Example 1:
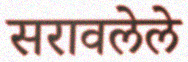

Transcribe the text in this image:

सरावलेले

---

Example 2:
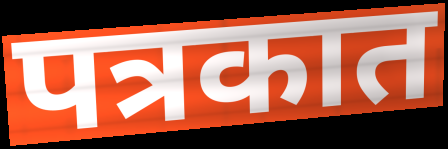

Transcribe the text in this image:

पत्रकात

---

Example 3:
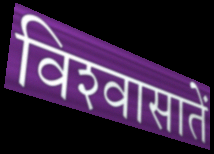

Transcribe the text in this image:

विश्वासातें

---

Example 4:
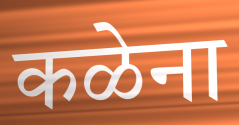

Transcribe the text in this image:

कळेना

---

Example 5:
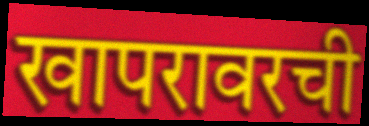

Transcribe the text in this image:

खापरावरची